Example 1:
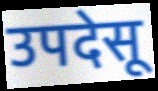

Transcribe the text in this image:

उपदेसू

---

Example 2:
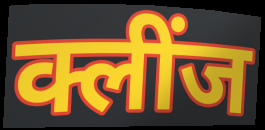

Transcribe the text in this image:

क्लींज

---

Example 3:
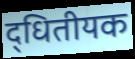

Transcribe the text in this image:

द्धितीयक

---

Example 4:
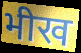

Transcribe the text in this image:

भीख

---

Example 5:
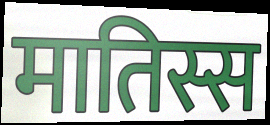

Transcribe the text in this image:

मातिस्स